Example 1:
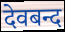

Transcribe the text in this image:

देवबन्द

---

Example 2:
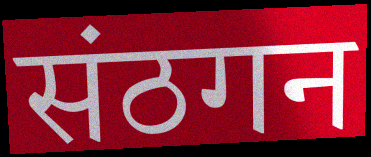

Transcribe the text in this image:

संठगन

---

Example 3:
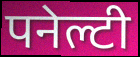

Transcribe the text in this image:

पनेल्टी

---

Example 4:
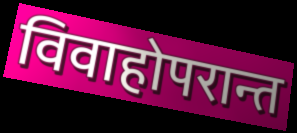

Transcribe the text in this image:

विवाहोपरान्त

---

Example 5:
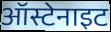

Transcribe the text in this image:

ऑस्टेनाइट